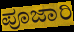
ಪೂಜಾರಿ